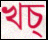
খচ্